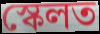
স্কেলত